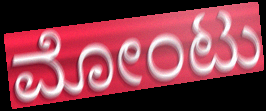
ಮೋಂಟು